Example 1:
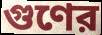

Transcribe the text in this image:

গুণের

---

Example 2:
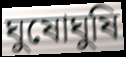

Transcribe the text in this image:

ঘুষোঘুষি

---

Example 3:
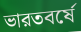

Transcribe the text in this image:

ভারতবর্ষে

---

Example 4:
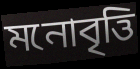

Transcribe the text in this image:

মনোবৃত্তি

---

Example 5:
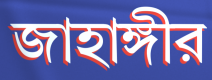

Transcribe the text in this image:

জাহাঙ্গীর